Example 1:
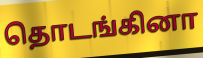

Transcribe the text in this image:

தொடங்கினா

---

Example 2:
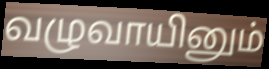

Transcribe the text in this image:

வழுவாயினும்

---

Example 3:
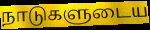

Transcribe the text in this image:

நாடுகளுடைய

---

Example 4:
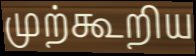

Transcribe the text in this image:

முற்கூறிய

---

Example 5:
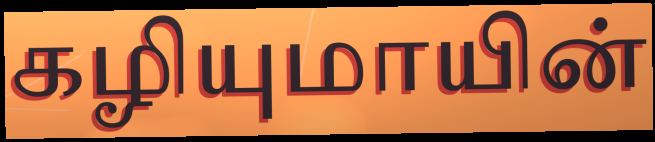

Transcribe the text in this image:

கழியுமாயின்